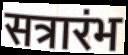
सत्रारंभ